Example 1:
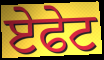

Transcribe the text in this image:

ਏਫੇਟ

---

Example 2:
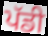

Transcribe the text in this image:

ਪੱਡੀ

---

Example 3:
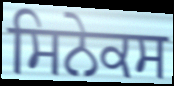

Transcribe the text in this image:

ਸਿਨੇਕਸ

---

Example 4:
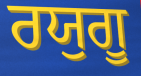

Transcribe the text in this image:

ਰਯੁਗੂ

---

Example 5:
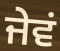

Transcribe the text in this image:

ਜੇਵਂ